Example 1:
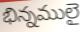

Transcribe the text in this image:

భిన్నములై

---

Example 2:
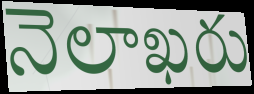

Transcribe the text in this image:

నెలాఖరు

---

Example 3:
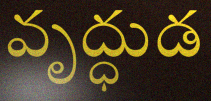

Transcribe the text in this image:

వృద్ధుడ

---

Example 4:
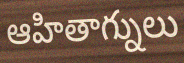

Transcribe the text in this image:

ఆహితాగ్నులు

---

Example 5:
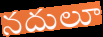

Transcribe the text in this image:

నదులూ